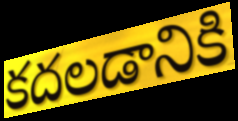
కదలడానికి